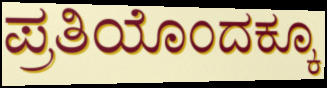
ಪ್ರತಿಯೊಂದಕ್ಕೂ